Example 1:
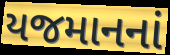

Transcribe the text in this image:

યજમાનનાં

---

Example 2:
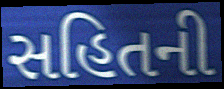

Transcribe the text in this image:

સહિતની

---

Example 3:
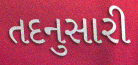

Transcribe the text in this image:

તદનુસારી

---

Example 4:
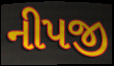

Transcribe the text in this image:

નીપજી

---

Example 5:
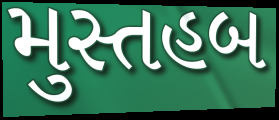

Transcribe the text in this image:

મુસ્તહબ